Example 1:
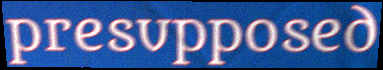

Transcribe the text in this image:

presupposed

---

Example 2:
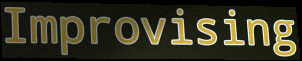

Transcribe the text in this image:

Improvising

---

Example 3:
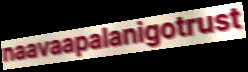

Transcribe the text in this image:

naavaapalanigotrust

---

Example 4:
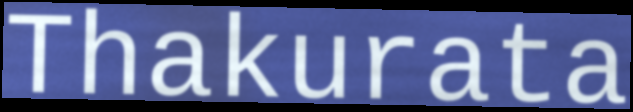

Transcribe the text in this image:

Thakurata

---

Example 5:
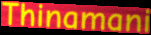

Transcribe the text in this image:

Thinamani